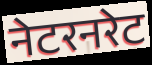
नेटरनरेट